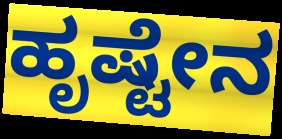
ಹೃಷ್ಟೇನ